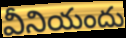
వీనియందు